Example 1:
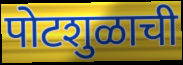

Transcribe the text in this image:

पोटशुळाची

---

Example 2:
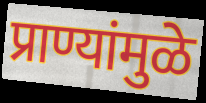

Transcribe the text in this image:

प्राण्यांमुळे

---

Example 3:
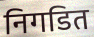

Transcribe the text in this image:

निगडित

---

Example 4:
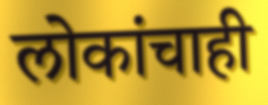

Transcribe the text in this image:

लोकांचाही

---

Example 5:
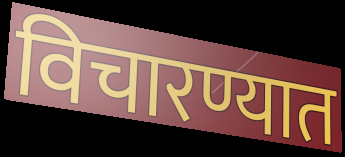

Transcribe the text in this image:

विचारण्यात